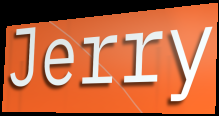
Jerry